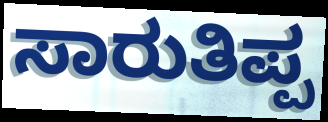
ಸಾರುತಿಪ್ಪ